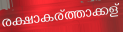
രക്ഷാകര്ത്താക്കള്